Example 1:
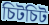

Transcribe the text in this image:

চিটচিট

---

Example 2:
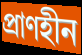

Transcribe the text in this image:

প্রাণহীন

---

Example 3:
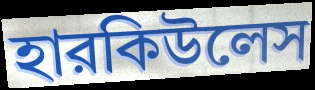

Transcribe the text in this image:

হারকিউলেস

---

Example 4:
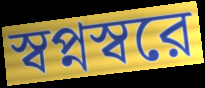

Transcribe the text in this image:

স্বপ্নস্বরে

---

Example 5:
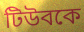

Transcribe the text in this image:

টিউবকে